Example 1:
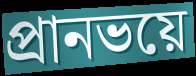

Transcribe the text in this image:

প্রানভয়ে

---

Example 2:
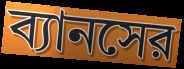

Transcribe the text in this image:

ব্যানসের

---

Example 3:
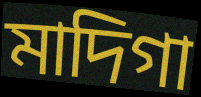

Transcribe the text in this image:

মাদিগা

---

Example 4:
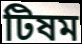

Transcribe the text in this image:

টিষম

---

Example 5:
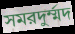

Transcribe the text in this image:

সমরদুর্ম্মদ